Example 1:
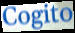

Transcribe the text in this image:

Cogito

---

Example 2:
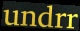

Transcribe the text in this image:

undrr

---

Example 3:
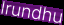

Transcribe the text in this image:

Irundhu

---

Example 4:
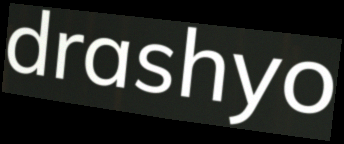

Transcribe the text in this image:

drashyo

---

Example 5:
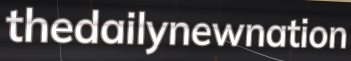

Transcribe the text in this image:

thedailynewnation